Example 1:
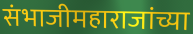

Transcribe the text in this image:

संभाजीमहाराजांच्या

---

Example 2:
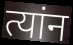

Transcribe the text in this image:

त्यांन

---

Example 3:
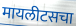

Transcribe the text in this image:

मायलीटसचा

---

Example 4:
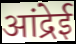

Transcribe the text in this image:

आंद्रेई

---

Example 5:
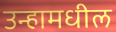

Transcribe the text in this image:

उन्हामधील